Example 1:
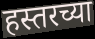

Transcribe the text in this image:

हस्तरच्या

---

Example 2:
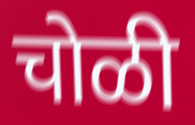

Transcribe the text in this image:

चोळी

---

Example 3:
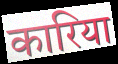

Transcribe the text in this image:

कारिया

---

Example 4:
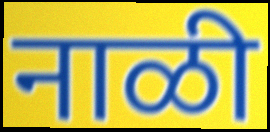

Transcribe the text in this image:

नाळी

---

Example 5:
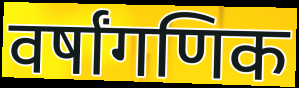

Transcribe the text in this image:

वर्षांगणिक